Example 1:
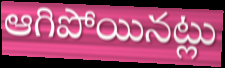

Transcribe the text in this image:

ఆగిపోయినట్లు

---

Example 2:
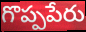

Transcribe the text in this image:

గొప్పపేరు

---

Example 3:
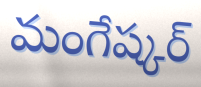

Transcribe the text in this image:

మంగేష్కర్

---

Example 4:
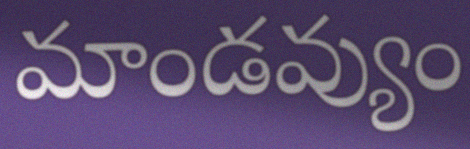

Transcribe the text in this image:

మాండవ్యుం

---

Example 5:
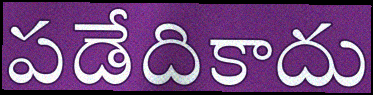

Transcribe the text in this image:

పడేదికాదు